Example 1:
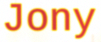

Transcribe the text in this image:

Jony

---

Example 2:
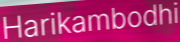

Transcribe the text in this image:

Harikambodhi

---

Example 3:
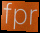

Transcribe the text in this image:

fpr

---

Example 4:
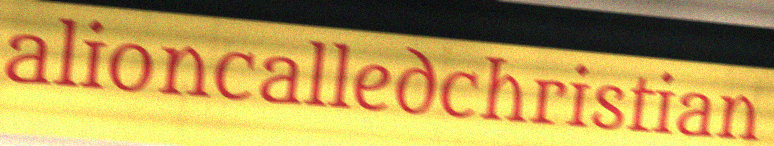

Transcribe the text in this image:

alioncalledchristian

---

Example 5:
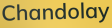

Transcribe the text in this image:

Chandolay